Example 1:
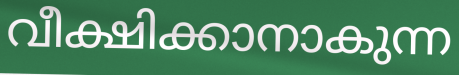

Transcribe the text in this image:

വീക്ഷിക്കാനാകുന്ന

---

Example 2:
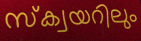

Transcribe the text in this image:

സ്ക്വയറിലും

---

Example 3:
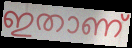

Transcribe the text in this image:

ഇതാണ്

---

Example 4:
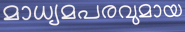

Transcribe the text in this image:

മാധ്യമപരവുമായ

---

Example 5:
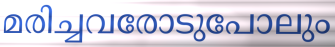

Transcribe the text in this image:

മരിച്ചവരോടുപോലും